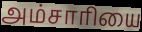
அம்சாரியை